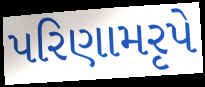
પરિણામરૃપે